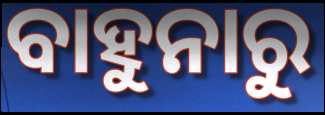
ବାହୁନାରୁ